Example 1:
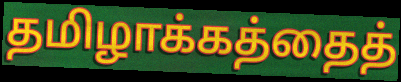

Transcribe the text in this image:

தமிழாக்கத்தைத்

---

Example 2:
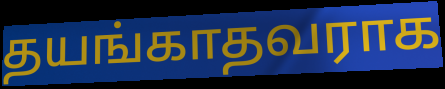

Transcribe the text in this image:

தயங்காதவராக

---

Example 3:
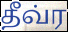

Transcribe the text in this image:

தீவ்ர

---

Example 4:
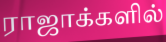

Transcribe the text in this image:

ராஜாக்களில்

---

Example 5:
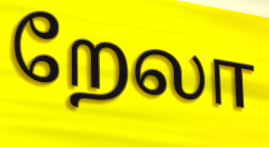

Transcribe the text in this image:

றேலா